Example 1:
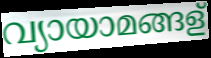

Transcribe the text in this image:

വ്യായാമങ്ങള്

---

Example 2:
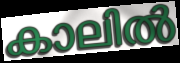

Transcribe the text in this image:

കാലിൽ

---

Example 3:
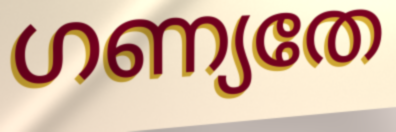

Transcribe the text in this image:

ഗണ്യതേ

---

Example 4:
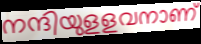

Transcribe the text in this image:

നന്ദിയുളളവനാണ്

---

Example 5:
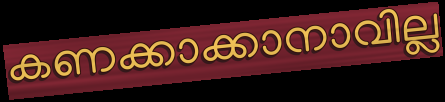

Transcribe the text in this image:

കണക്കാക്കാനാവില്ല